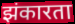
झंकारता